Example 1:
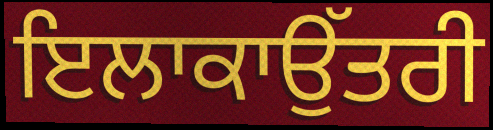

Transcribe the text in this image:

ਇਲਾਕਾਉੱਤਰੀ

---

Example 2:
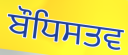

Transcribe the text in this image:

ਬੌਧਿਸਤਵ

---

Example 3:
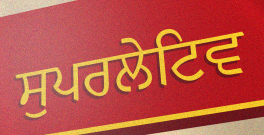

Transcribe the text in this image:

ਸੁਪਰਲੇਟਿਵ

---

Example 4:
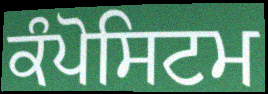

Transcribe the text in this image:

ਕੰਪੋਸਿਟਮ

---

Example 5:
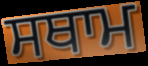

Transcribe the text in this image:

ਸਥਾਮ